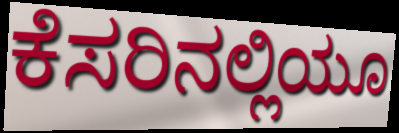
ಕೆಸರಿನಲ್ಲಿಯೂ